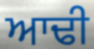
ਆਢੀ